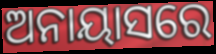
ଅନାୟାସରେ